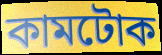
কামটোক